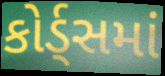
કોર્ડ્સમાં